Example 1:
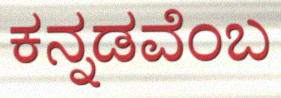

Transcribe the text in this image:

ಕನ್ನಡವೆಂಬ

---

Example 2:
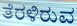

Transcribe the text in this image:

ತೆರಳಿರುವ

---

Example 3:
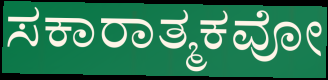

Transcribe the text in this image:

ಸಕಾರಾತ್ಮಕವೋ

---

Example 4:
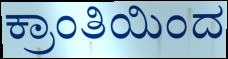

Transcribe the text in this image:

ಕ್ರಾಂತಿಯಿಂದ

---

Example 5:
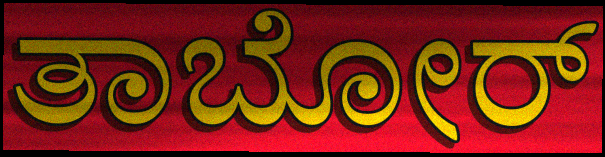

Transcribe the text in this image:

ತಾಬೋರ್